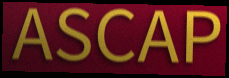
ASCAP